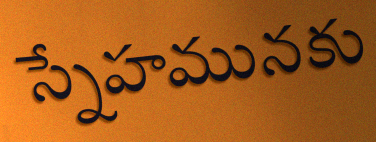
స్నేహమునకు